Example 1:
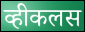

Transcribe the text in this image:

व्हीकलस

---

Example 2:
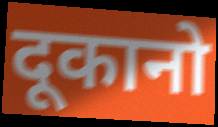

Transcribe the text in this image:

दूकानो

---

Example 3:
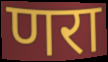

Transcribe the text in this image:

णरा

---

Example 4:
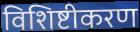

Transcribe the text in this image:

विशिष्टीकरण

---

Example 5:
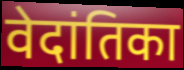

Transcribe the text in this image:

वेदांतिका